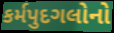
કર્મપુદગલોનો